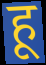
हू